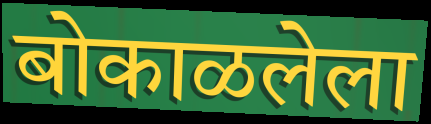
बोकाळलेला